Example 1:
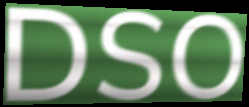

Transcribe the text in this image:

DSO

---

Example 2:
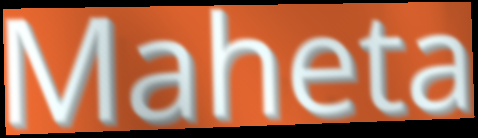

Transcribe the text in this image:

Maheta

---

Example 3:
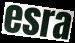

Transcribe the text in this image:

esra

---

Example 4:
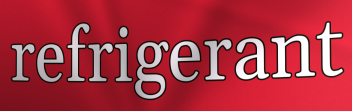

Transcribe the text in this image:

refrigerant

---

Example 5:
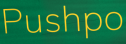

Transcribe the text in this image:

Pushpo